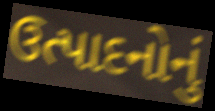
ઉત્પાદનોનું